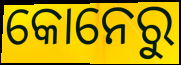
କୋନେରୁ